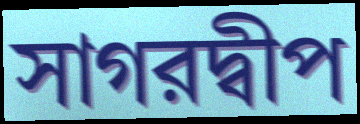
সাগরদ্বীপ